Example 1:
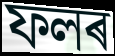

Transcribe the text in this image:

ফলৰ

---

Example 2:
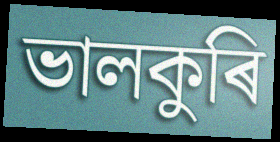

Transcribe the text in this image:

ভালকুৰি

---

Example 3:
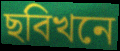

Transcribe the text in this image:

ছবিখনে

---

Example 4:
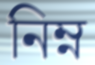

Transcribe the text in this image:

নিম্ন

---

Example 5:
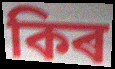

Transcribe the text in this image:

কিৰ